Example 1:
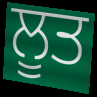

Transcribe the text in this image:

ਲੂਤ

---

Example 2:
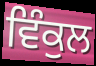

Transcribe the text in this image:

ਵਿੰਕੁਲ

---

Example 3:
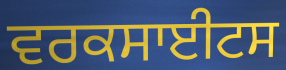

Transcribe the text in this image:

ਵਰਕਸਾਈਟਸ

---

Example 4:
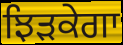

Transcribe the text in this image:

ਝਿੜਕੇਗਾ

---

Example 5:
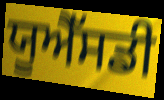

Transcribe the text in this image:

ਯੂਐੱਸਡੀ